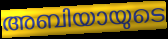
അബിയായുടെ